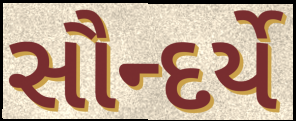
સૌન્દર્યે